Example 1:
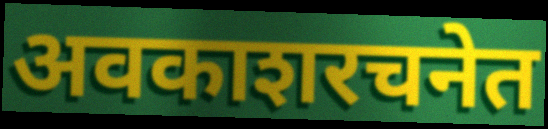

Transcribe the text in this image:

अवकाशरचनेत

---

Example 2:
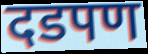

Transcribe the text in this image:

दडपण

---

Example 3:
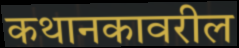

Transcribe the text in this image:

कथानकावरील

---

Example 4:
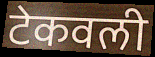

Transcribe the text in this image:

टेकवली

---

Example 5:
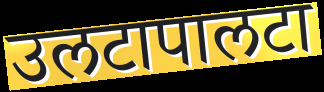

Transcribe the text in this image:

उलटापालटा